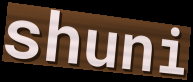
shuni